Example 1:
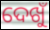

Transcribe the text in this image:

ଦେଖୁଁ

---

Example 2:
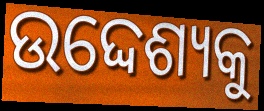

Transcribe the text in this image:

ଉଦ୍ଦେଶ୍ୟକୁ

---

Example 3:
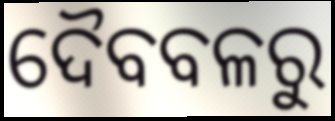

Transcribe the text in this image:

ଦୈବବଳରୁ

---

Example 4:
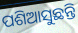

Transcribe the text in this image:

ପଶିଆସୁଛନ୍ତି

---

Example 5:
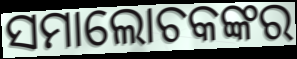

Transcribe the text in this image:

ସମାଲୋଚକଙ୍କର